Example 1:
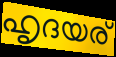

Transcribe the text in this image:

ഹൃദയര്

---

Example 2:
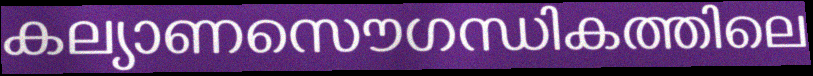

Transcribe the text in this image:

കല്യാണസൌഗന്ധികത്തിലെ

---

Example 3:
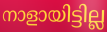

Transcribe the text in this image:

നാളായിട്ടില്ല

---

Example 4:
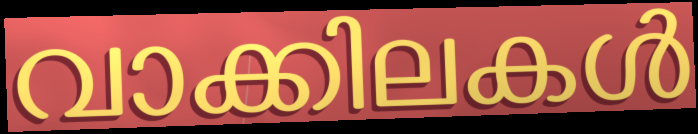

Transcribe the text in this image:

വാക്കിലകൾ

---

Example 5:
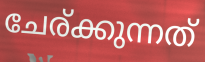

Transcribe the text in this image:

ചേര്ക്കുന്നത്